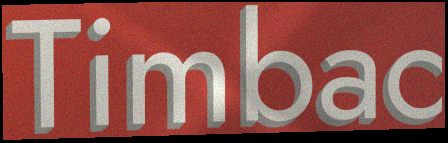
Timbac